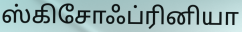
ஸ்கிசோஃப்ரினியா